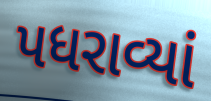
પધરાવ્યાં